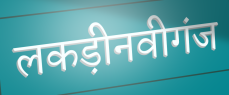
लकड़ीनवीगंज